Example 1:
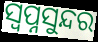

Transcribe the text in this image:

ସ୍ୱପ୍ନସୁନ୍ଦର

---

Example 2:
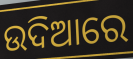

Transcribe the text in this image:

ଉଦିଆରେ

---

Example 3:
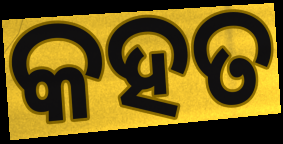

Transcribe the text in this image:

କହତ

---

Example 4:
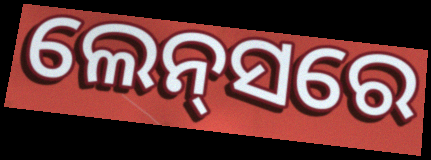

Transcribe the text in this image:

ଲେନ୍‌ସରେ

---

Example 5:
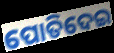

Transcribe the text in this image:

ପୋତିଦେଇ